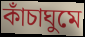
কাঁচাঘুমে